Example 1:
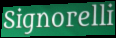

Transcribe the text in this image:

Signorelli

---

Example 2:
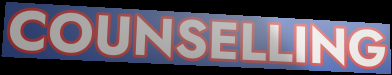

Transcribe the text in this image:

COUNSELLING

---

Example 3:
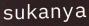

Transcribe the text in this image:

sukanya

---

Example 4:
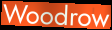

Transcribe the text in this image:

Woodrow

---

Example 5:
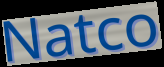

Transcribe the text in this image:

Natco